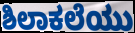
ಶಿಲಾಕಲೆಯು